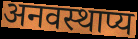
अनवस्थाप्य